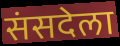
संसदेला